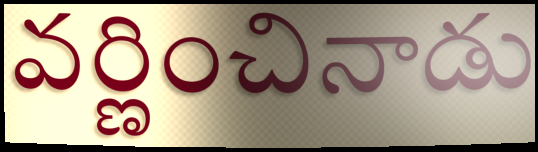
వర్ణించినాడు